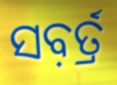
ସବ଼ର୍ତ୍ର